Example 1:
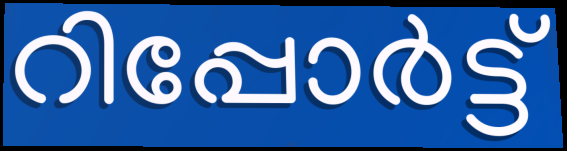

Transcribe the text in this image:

റിപ്പോർട്ട്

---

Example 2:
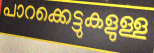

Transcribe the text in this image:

പാറക്കെട്ടുകളുള്ള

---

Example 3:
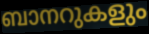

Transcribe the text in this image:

ബാനറുകളും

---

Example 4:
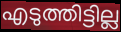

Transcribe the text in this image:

എടുത്തിട്ടില്ല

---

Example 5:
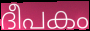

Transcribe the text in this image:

ദീപകം